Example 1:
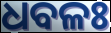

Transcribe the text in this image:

ଧବଳଃ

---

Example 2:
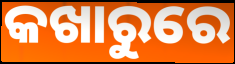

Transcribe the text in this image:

କଖାରୁରେ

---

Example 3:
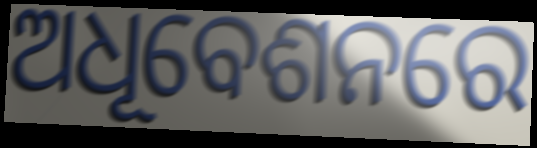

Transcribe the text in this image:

ଅଧୂବେଶନରେ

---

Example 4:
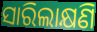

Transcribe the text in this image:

ସାରିଲାକ୍ଷଣି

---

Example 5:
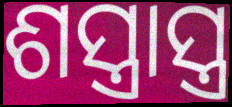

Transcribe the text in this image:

ଶସ୍ତ୍ରାସ୍ତ୍ର